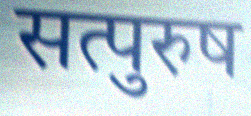
सत्पुरुष